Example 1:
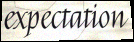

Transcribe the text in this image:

expectation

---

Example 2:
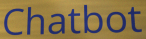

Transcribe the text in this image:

Chatbot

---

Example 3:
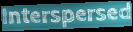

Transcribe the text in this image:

Interspersed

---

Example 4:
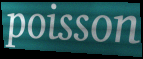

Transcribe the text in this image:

poisson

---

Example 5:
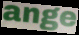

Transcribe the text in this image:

ange